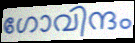
ഗോവിന്ദം